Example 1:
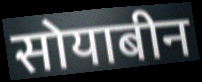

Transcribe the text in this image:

सोयाबीन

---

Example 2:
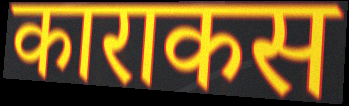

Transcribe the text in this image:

काराकस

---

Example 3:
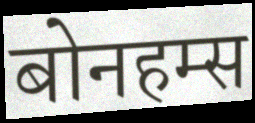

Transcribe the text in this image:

बोनहम्स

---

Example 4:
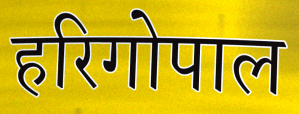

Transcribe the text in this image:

हरिगोपाल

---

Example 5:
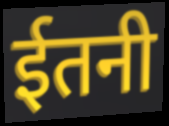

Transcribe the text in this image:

ईतनी